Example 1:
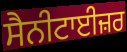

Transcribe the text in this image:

ਸੈਨੀਟਾਈਜ਼ਰ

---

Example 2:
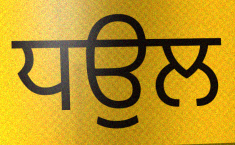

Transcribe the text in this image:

ਧਉਲ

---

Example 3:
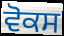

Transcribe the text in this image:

ਵੋਕਸ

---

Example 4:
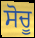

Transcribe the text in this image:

ਸੋਚੂ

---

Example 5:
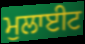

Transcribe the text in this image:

ਮੁਲਾਈਟ